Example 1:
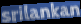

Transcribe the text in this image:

srilankan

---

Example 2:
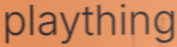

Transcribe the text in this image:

plaything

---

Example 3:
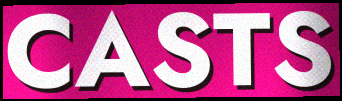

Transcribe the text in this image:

CASTS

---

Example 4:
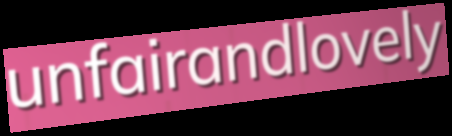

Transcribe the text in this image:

unfairandlovely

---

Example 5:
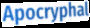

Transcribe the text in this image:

Apocryphal